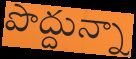
పొద్దున్నా